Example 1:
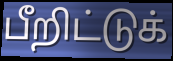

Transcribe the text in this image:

பீறிட்டுக்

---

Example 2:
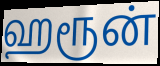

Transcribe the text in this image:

ஹரூன்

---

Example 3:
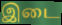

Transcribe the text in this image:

இடை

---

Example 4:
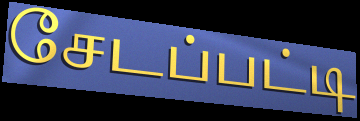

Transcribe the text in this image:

சேடப்பட்டி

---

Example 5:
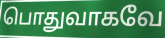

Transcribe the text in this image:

பொதுவாகவே